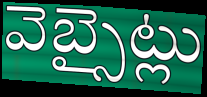
వెబ్సైట్లు